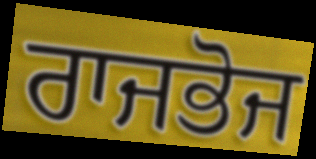
ਰਾਜਭੋਜ